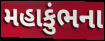
મહાકુંભના